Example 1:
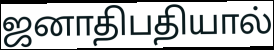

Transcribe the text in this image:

ஜனாதிபதியால்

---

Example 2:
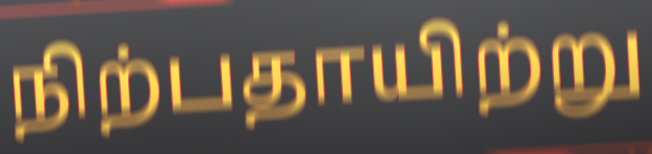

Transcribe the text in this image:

நிற்பதாயிற்று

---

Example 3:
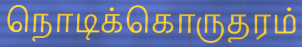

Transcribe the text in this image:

நொடிக்கொருதரம்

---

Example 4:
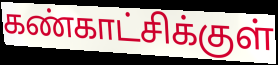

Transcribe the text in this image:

கண்காட்சிக்குள்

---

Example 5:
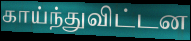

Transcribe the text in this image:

காய்ந்துவிட்டன